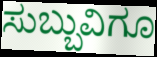
ಸುಬ್ಬುವಿಗೂ